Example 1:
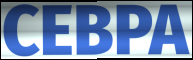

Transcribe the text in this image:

CEBPA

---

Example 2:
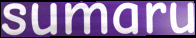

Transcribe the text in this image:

sumaru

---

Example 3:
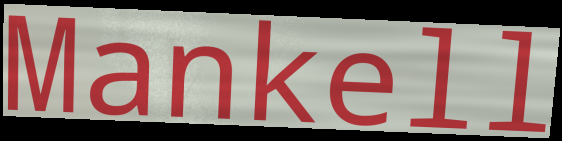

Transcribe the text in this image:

Mankell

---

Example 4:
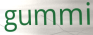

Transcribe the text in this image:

gummi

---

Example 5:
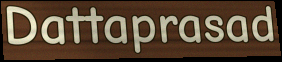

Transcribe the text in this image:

Dattaprasad